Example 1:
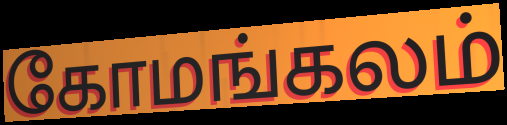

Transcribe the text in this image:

கோமங்கலம்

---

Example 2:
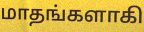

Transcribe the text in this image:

மாதங்களாகி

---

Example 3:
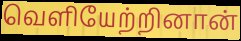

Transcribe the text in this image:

வெளியேற்றினான்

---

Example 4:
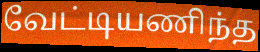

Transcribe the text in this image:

வேட்டியணிந்த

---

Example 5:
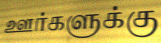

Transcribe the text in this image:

ஊர்களுக்கு